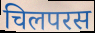
चिलपरस